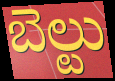
బెల్టు